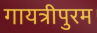
गायत्रीपुरम